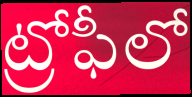
ట్రోఫీలో